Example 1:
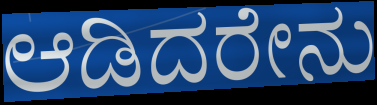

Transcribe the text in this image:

ಆಡಿದರೇನು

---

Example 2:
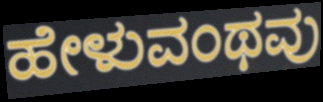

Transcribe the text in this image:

ಹೇಳುವಂಥವು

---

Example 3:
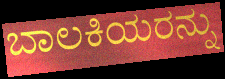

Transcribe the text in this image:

ಬಾಲಕಿಯರನ್ನು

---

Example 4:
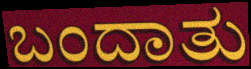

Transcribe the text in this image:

ಬಂದಾತು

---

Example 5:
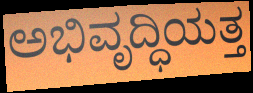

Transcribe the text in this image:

ಅಭಿವೃದ್ಧಿಯತ್ತ